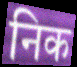
निक